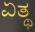
ಏತ್ಥ